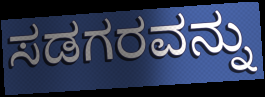
ಸಡಗರವನ್ನು